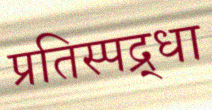
प्रतिस्पद्र्धा